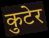
कुटेर